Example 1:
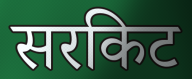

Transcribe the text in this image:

सरकिट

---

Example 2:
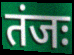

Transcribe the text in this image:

तंजः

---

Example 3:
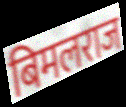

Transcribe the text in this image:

बिमलराज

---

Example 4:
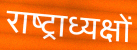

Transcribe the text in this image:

राष्ट्राध्यक्षों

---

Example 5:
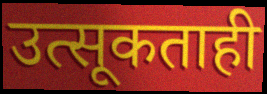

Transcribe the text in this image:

उत्सूकताही